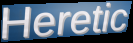
Heretic